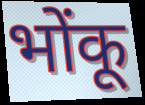
भोंकू